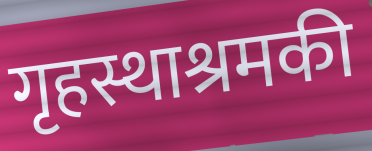
गृहस्थाश्रमकी